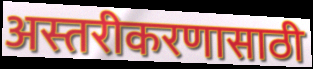
अस्तरीकरणासाठी